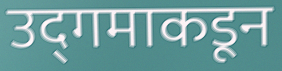
उद्‌गमाकडून